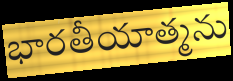
భారతీయాత్మను